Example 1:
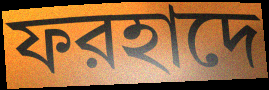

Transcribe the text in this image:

ফরহাদে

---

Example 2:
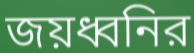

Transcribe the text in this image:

জয়ধ্বনির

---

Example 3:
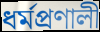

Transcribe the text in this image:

ধর্মপ্রণালী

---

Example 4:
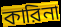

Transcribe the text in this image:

কারিনা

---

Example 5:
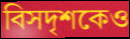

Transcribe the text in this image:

বিসদৃশকেও